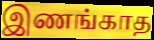
இணங்காத